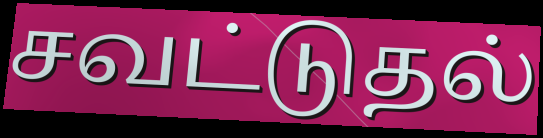
சவட்டுதல்